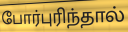
போர்புரிந்தால்